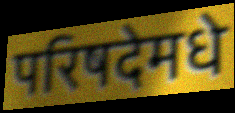
परिषदेमधे